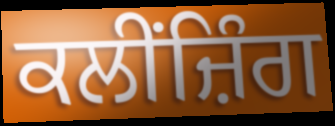
ਕਲੀਂਜ਼ਿੰਗ